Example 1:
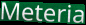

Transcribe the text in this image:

Meteria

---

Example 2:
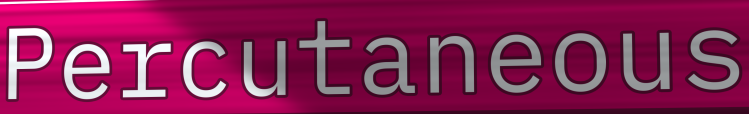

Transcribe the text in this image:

Percutaneous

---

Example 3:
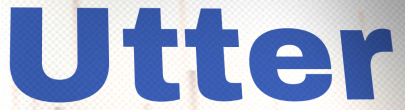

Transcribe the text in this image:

Utter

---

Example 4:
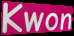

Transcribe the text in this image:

Kwon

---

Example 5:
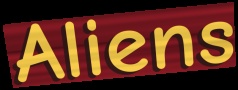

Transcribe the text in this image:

Aliens